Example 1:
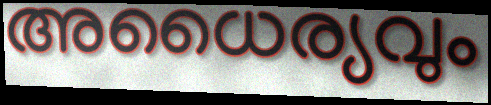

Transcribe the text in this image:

അധൈര്യവും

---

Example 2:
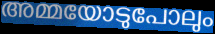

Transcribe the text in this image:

അമ്മയോടുപോലും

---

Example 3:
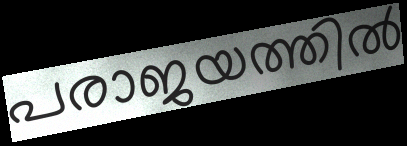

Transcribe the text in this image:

പരാജയത്തിൽ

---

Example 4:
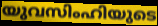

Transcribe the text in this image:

യുവസിംഹിയുടെ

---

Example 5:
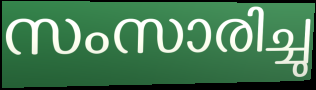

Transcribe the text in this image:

സംസാരിച്ചു